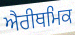
ਐਰੀਥਮਿਕ